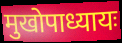
मुखोपाध्यायः